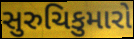
સુરુચિકુમારો